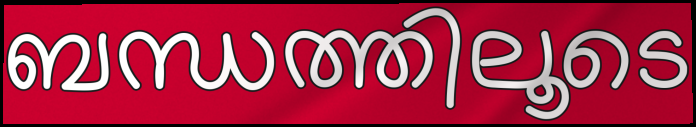
ബന്ധത്തിലൂടെ